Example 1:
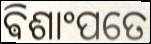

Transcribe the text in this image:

ଵିଶାଂପତେ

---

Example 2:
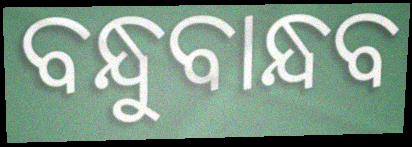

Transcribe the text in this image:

ବନ୍ଧୁବାନ୍ଧବ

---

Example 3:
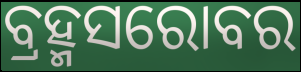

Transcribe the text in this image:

ବ୍ରହ୍ମସରୋବର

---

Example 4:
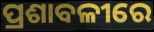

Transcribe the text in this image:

ପ୍ରଶାବଳୀରେ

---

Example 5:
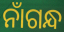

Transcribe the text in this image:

ନାଁଗନ୍ଧ